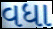
વધા